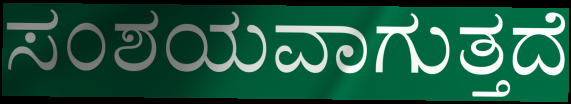
ಸಂಶಯವಾಗುತ್ತದೆ